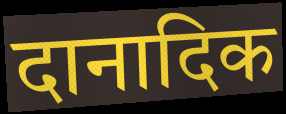
दानादिक